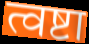
त्वष्टा